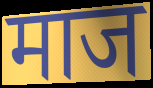
माज